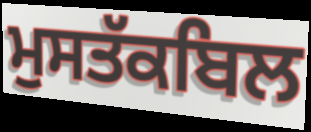
ਮੁਸਤੱਕਬਿਲ